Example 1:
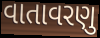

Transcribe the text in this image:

વાતાવરણુ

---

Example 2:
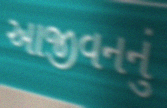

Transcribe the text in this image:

આજીવનનું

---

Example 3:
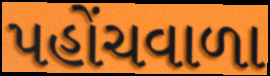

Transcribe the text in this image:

પહોંચવાળા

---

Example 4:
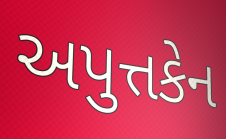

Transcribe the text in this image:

અપુત્તકેન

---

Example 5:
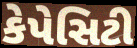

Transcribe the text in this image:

કેપેસિટી